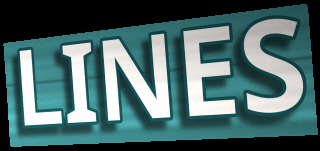
LINES